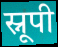
स्नूपी